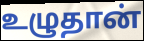
உழுதான்